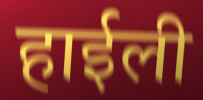
हाईली